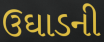
ઉઘાડની